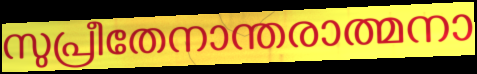
സുപ്രീതേനാന്തരാത്മനാ